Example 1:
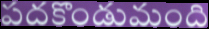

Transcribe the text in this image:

పదకొండుమంది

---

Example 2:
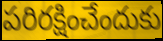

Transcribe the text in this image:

పరిరక్షించేందుకు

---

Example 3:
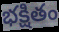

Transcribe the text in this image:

భక్షితం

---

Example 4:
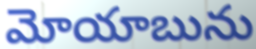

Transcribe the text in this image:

మోయాబును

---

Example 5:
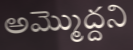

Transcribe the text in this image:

అమ్మొద్దని